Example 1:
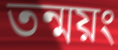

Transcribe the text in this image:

তন্ময়ং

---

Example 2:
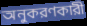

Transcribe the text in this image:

অনুকরণকারী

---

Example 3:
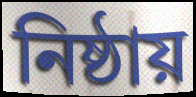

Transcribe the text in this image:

নিষ্ঠায়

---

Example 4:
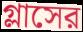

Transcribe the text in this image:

গ্লাসের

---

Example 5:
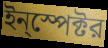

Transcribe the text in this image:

ইন্‌স্পেক্টর